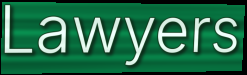
Lawyers